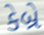
કેબ્રે